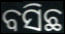
ବସିଛ